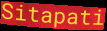
Sitapati